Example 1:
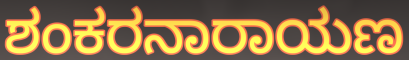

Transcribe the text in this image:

ಶಂಕರನಾರಾಯಣ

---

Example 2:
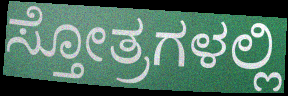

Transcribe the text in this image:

ಸ್ತೋತ್ರಗಳಲ್ಲಿ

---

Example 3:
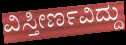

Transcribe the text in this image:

ವಿಸ್ತೀರ್ಣವಿದ್ದು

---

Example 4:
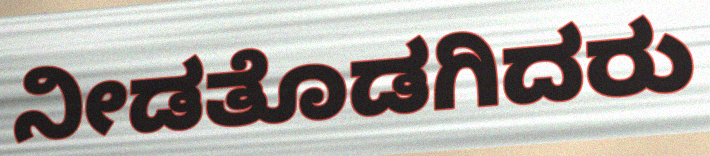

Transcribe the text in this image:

ನೀಡತೊಡಗಿದರು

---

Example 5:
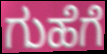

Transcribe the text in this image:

ಗುಹೆಗೆ